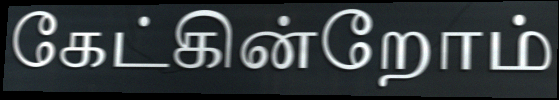
கேட்கின்றோம்